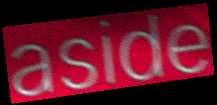
aside